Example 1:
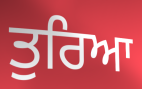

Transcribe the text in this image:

ਤੁਰਿਆ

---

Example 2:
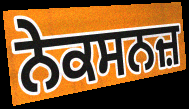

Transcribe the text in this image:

ਨੇਕਸਨਜ਼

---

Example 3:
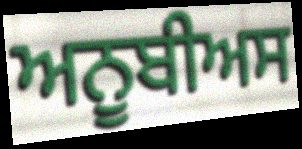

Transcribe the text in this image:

ਅਨੂਬੀਅਸ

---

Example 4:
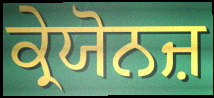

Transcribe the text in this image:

ਕ੍ਰੇਯੋਨਜ਼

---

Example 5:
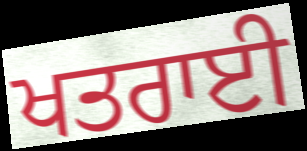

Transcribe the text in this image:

ਖਤਰਾਈ